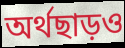
অর্থছাড়ও